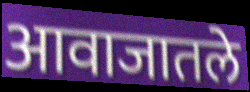
आवाजातले